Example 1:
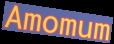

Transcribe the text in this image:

Amomum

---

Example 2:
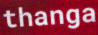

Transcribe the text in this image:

thanga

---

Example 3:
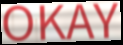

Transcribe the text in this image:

OKAY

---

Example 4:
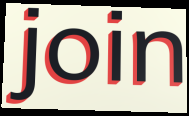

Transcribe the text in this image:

join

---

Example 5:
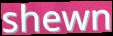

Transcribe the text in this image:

shewn